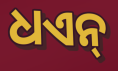
ଧଏନ୍